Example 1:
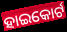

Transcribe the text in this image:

ହାଇକୋର୍ଟ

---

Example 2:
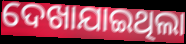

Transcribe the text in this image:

ଦେଖାଯାଇଥିଲା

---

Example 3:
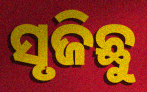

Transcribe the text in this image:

ସୃଜିଛୁ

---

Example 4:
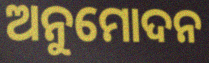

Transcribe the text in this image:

ଅନୁମୋଦନ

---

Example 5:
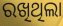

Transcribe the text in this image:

ରଖିଥିଲା